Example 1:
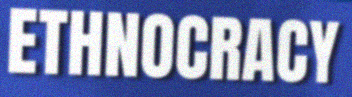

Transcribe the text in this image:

ETHNOCRACY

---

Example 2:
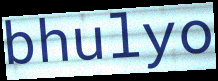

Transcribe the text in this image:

bhulyo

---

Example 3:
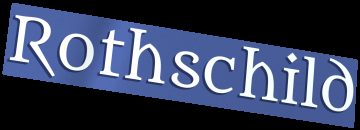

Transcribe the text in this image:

Rothschild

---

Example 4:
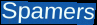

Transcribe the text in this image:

Spamers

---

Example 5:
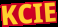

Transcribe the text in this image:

KCIE